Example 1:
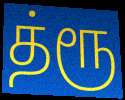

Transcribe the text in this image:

த்ரூ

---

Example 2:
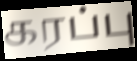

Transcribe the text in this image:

கரப்பு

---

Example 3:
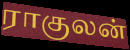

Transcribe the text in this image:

ராகுலன்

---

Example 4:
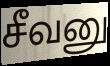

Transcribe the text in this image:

சீவனு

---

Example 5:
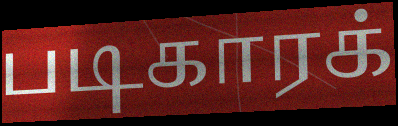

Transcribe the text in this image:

படிகாரக்